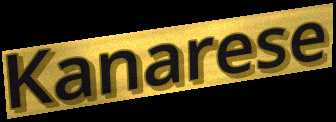
Kanarese